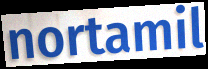
nortamil